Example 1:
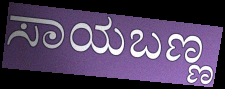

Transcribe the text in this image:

ಸಾಯಬಣ್ಣ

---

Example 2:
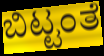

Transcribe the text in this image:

ಬಿಟ್ಟಂತೆ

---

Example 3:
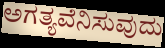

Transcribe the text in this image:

ಅಗತ್ಯವೆನಿಸುವುದು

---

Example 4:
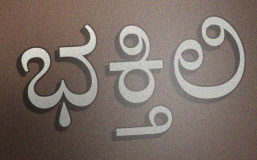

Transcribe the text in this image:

ಭಕ್ತಿಲಿ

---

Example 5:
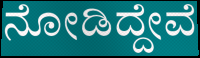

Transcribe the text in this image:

ನೋಡಿದ್ದೇವೆ